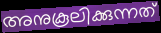
അനുകൂലിക്കുന്നത്